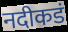
नदीकडं